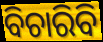
ବିଚାରିବି